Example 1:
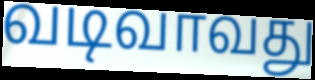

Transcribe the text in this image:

வடிவாவது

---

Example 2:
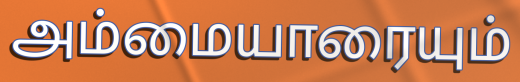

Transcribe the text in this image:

அம்மையாரையும்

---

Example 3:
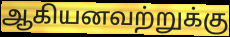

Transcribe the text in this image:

ஆகியனவற்றுக்கு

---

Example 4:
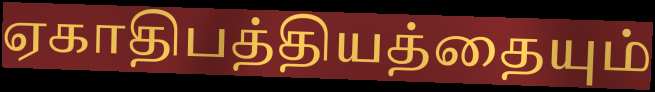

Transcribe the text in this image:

ஏகாதிபத்தியத்தையும்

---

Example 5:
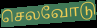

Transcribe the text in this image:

செலவோடு